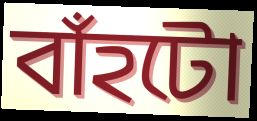
বাঁহটো